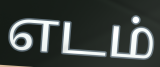
எடம்